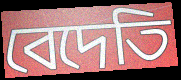
বেদেতি